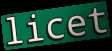
licet